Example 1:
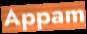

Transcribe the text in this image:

Appam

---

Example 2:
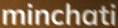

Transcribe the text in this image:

minchati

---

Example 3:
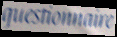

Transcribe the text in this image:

questionnaire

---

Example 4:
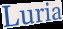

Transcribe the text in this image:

Luria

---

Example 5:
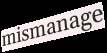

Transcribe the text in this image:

mismanage